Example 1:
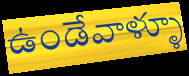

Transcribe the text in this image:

ఉండేవాళ్ళూ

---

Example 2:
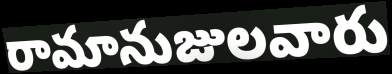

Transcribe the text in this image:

రామానుజులవారు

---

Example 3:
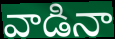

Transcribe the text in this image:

వాడినా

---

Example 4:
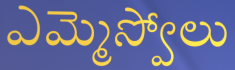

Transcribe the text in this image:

ఎమ్మెస్వోలు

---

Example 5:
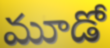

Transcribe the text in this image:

మూడో